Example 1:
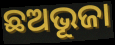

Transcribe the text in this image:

ଛଅଭୂଜା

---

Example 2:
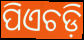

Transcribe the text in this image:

ପିଏଚଡ଼ି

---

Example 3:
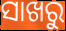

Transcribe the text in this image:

ସାଖରୁ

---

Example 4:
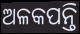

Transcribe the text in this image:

ଅଳକପନ୍ତି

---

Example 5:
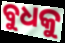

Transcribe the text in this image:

ବୁଧକୁ